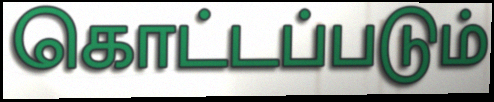
கொட்டப்படும்